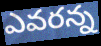
ఎవరన్న